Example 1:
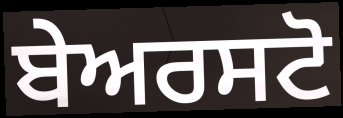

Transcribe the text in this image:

ਬੇਅਰਸਟੋ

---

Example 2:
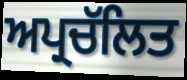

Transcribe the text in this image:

ਅਪ੍ਰਚੱਲਿਤ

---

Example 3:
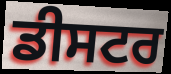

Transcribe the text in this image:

ਡੀਸਟਰ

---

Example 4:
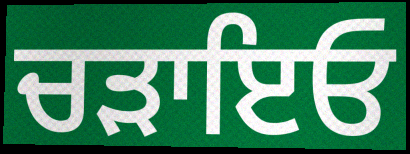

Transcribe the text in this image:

ਚੜਾਇਓ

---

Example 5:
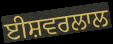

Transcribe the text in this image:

ਈਸ਼ਵਰਲਾਲ